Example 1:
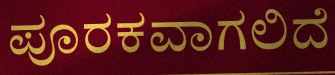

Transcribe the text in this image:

ಪೂರಕವಾಗಲಿದೆ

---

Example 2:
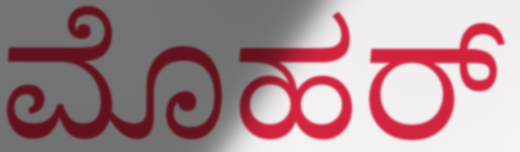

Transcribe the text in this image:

ಮೊಹರ್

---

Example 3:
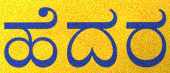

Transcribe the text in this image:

ಹೆದರ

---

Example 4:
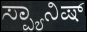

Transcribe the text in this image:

ಸ್ಪ್ಯಾನಿಷ್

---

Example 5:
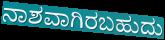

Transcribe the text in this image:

ನಾಶವಾಗಿರಬಹುದು